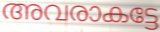
അവരാകട്ടേ